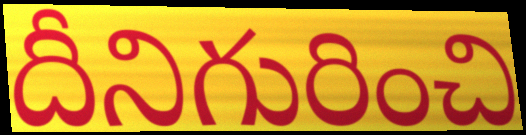
దీనిగురించి